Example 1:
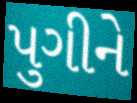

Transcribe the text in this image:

પુગીને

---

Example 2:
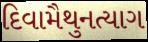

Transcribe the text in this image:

દિવામૈથુનત્યાગ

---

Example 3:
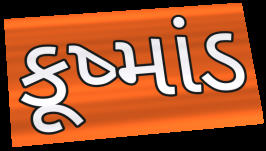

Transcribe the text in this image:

કૂષ્માંડ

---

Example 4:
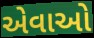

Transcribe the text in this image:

એવાઓ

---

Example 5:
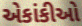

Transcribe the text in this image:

એકાંકીઓ